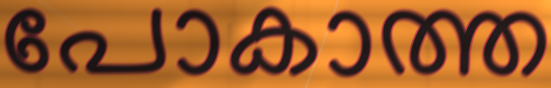
പോകാത്ത